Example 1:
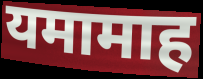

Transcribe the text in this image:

यमामाह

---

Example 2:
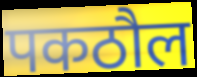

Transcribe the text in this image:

पकठौल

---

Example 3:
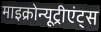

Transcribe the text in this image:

माइक्रोन्यूट्रीएंट्स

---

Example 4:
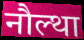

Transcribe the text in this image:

नौल्था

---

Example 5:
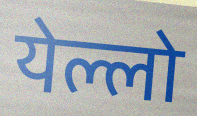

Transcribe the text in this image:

येल्लो